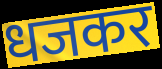
धजकर